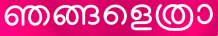
ഞങ്ങളെത്രാ